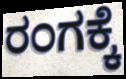
ರಂಗಕ್ಕೆ